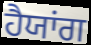
ਹੈਯਾਂਗ